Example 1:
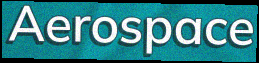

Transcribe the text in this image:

Aerospace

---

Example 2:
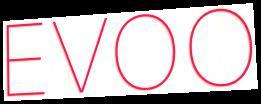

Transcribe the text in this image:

EVOO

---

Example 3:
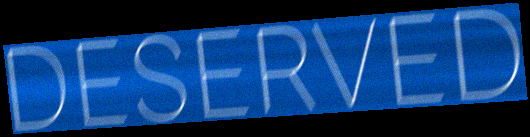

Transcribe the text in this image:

DESERVED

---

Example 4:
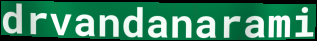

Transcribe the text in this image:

drvandanarami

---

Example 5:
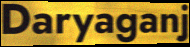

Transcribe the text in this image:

Daryaganj